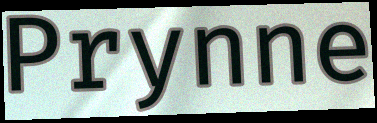
Prynne